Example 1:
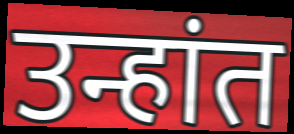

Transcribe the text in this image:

उन्हांत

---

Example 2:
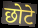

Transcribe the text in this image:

छोटे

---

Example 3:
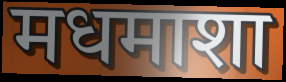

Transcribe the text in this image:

मधमाशा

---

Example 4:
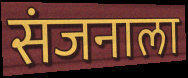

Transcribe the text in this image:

संजनाला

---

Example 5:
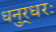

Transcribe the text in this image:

धनुर्धरः